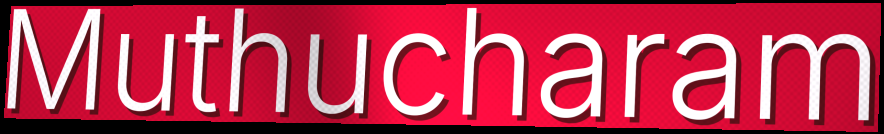
Muthucharam